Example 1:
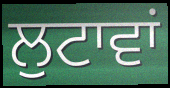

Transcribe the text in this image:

ਲੁਟਾਵਾਂ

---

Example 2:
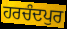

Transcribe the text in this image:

ਹਰਚੰਦਪੁਰ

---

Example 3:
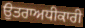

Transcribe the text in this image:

ਉਤਰਾਅਧੀਕਾਰੀ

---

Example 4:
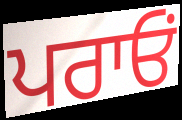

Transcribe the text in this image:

ਪਰਾਓਂ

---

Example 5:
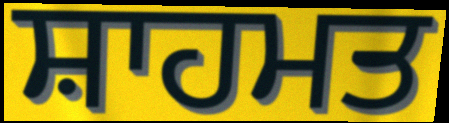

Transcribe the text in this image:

ਸ਼ਾਹਮਤ